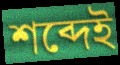
শব্দেই